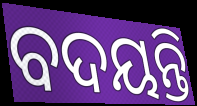
ବଦୟନ୍ତି